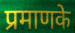
प्रमाणके